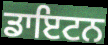
ਡਾਇਟਨ